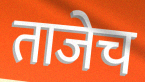
ताजेच